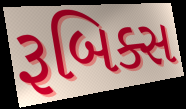
રૂબિક્સ